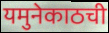
यमुनेकाठची